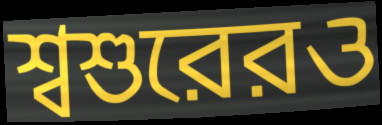
শ্বশুরেরও